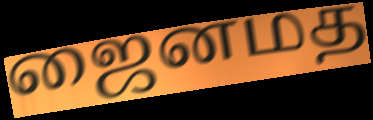
ஜைனமத